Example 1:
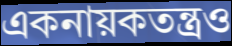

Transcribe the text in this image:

একনায়কতন্ত্রও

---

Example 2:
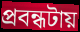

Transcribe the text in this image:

প্রবন্ধটায়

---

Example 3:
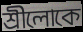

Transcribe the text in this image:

শ্রীলোকে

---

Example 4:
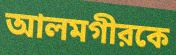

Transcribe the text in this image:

আলমগীরকে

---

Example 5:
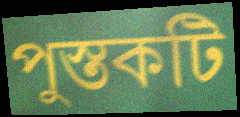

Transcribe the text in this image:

পুস্তকটি